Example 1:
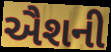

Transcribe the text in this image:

ઐશની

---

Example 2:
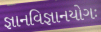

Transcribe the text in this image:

જ્ઞાનવિજ્ઞાનયોગઃ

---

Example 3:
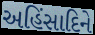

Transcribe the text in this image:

અહિંસાદિને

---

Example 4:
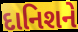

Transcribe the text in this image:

દાનિશને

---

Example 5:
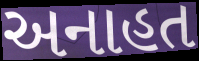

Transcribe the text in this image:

અનાહત